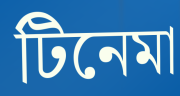
টিনেমা